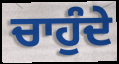
ਚਾਹੁੰਦੇ